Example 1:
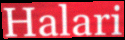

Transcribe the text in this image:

Halari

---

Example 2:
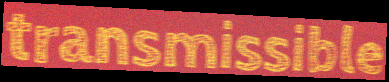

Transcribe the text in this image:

transmissible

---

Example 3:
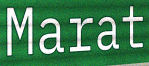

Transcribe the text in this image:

Marat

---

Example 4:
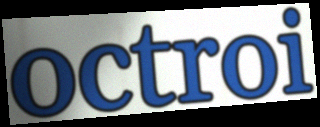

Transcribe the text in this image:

octroi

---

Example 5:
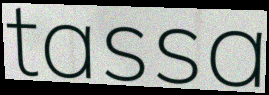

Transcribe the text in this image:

tassa